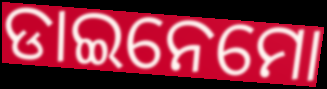
ଡାଇନେମୋ